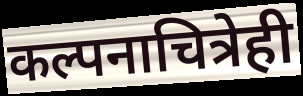
कल्पनाचित्रेही